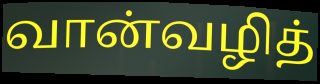
வான்வழித்